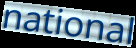
national